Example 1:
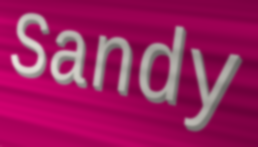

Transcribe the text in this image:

Sandy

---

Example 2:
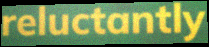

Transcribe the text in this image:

reluctantly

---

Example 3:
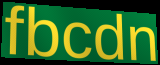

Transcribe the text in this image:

fbcdn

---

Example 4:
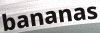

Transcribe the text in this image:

bananas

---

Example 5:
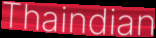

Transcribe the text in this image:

Thaindian